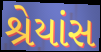
શ્રેયાંસ